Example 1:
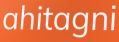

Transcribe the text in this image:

ahitagni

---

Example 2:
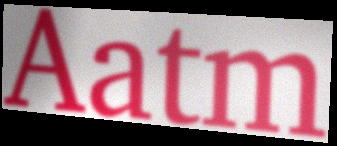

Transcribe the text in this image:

Aatm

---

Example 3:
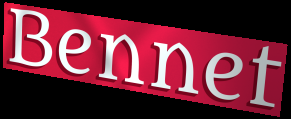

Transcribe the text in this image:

Bennet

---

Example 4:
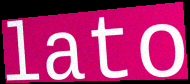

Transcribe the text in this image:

lato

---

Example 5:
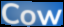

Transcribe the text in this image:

Cow